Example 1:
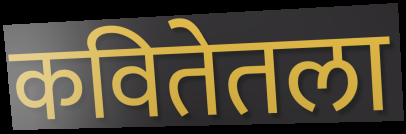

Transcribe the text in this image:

कवितेतला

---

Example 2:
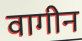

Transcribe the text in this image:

वागीन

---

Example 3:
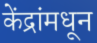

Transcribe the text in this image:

केंद्रांमधून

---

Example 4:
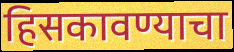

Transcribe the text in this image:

हिसकावण्याचा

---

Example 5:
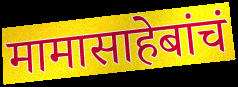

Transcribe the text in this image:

मामासाहेबांचं